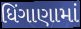
ધિંગાણામાં